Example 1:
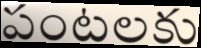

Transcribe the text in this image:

పంటలకు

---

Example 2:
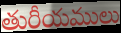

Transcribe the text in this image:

తురీయములు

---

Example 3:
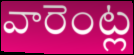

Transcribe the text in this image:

వారెంట్ల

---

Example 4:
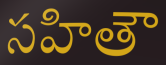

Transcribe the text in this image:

సహితౌ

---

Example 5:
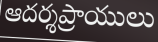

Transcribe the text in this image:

ఆదర్శప్రాయులు